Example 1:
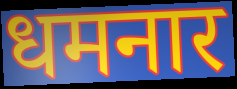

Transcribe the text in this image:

धमनार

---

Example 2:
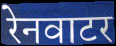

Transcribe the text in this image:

रेनवाटर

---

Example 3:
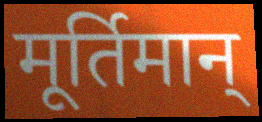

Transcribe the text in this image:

मूर्तिमान्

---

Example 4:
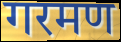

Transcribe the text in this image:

गरमण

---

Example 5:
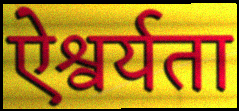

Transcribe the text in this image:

ऐश्वर्यता